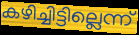
കഴിച്ചിട്ടില്ലെന്ന്